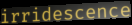
irridescence